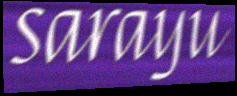
sarayu